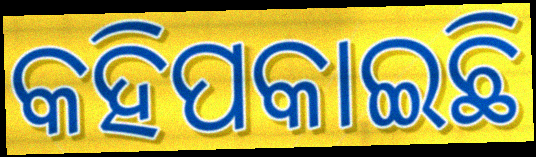
କହିପକାଇଛି